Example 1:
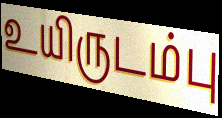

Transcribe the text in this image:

உயிருடம்பு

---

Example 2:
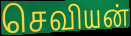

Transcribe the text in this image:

செவியன்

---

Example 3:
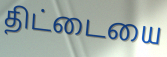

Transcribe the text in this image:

திட்டையை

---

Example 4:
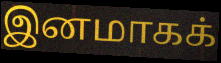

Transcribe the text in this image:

இனமாகக்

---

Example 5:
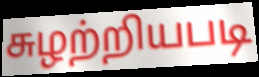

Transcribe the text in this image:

சுழற்றியபடி